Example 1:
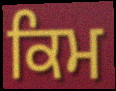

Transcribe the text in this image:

ਕਿਮ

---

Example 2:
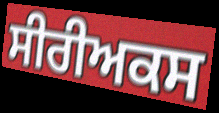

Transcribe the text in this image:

ਸੀਰੀਅਕਸ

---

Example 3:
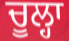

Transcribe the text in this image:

ਚੂਲ੍ਹਾ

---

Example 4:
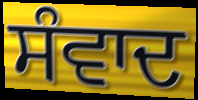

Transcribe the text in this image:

ਸੰਵਾਦ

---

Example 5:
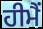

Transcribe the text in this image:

ਹੀਮੈਂ